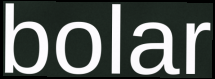
bolar